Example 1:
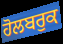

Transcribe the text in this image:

ਹੋਲਬਰੁਕ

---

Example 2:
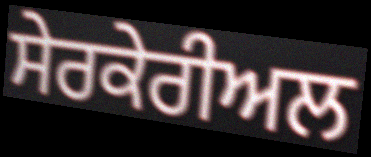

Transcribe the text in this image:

ਸੇਰਕੇਰੀਅਲ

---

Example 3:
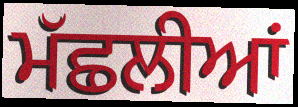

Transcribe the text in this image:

ਮੱਛਲੀਆਂ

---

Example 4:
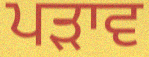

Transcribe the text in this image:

ਪੜਾਵ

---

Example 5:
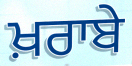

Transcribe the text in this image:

ਖ਼ਰਾਬੇ